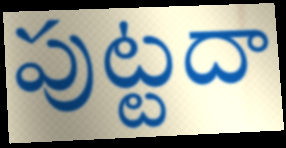
పుట్టదా